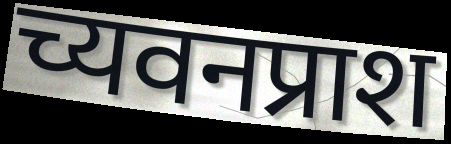
च्यवनप्राश